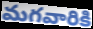
మగవారికి